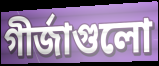
গীর্জাগুলো